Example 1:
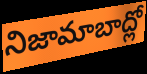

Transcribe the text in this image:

నిజామాబాద్లో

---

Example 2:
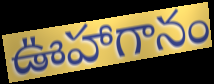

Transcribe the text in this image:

ఊహాగానం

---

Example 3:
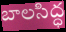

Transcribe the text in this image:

బాలసిద్ధ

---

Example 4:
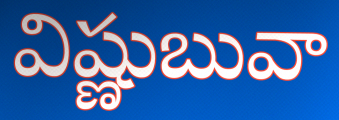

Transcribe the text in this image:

విష్ణుబువా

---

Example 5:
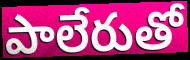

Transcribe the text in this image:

పాలేరుతో